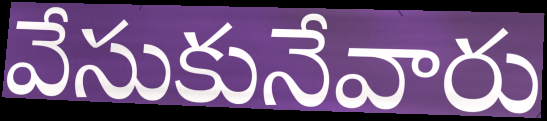
వేసుకునేవారు